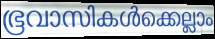
ഭൂവാസികൾക്കെല്ലാം